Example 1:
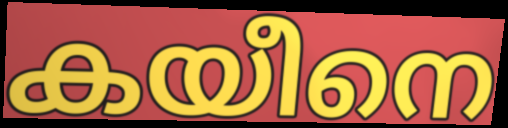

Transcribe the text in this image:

കയീനെ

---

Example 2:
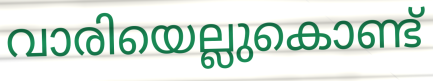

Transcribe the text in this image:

വാരിയെല്ലുകൊണ്ട്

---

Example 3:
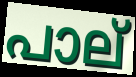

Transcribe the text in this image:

പാല്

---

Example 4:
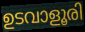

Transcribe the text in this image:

ഉടവാളൂരി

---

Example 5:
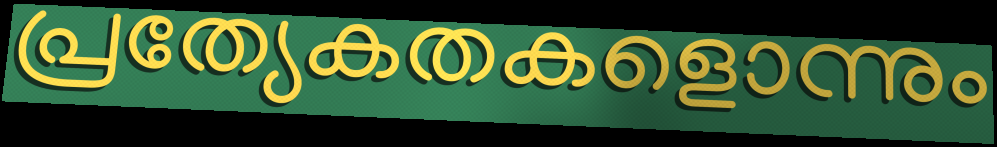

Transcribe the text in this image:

പ്രത്യേകതകളൊന്നും